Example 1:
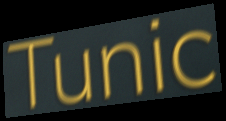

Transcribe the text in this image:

Tunic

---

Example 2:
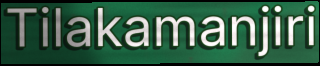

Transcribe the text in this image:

Tilakamanjiri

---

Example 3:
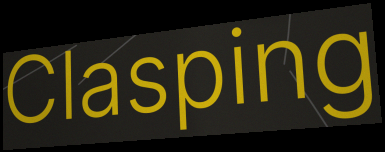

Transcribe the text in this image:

Clasping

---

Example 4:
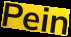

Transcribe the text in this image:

Pein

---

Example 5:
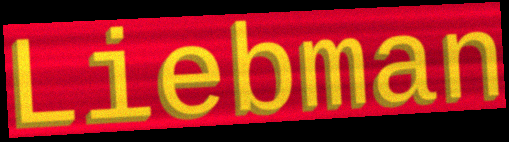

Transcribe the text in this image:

Liebman